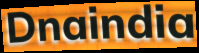
Dnaindia